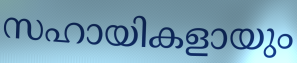
സഹായികളായും